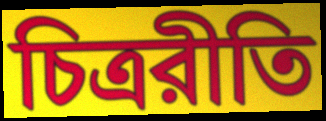
চিত্ররীতি